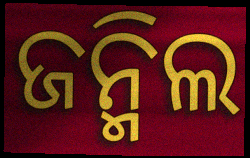
ଜନ୍ମିଲ